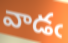
వాడఁ